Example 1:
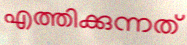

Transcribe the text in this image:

എത്തിക്കുന്നത്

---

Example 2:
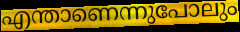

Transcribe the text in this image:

എന്താണെന്നുപോലും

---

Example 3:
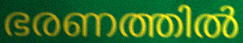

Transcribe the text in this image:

ഭരണത്തിൽ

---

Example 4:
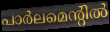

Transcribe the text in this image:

പാർലമെന്റിൽ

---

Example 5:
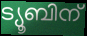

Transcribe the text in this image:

ട്യൂബിന്